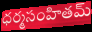
ధర్మసంహితమ్